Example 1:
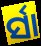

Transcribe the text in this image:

ର୍ସା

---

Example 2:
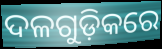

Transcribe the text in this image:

ଦଳଗୁଡ଼ିକରେ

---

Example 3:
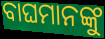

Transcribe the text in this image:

ବାଘମାନଙ୍କୁ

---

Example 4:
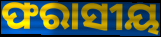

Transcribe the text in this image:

ଫରାସୀୟ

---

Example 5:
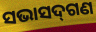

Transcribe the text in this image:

ସଭାସଦ୍‌ଗଣ